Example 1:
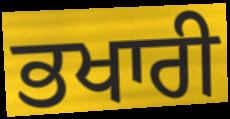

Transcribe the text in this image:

ਭਖਾਰੀ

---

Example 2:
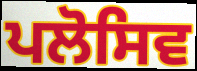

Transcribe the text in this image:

ਪਲੋਸਿਵ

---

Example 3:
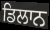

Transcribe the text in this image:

ਡਿਲਾਨ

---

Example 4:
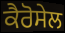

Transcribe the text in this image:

ਕੈਰੋਸੇਲ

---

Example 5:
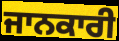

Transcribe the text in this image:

ਜਾਨਕਾਰੀ